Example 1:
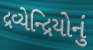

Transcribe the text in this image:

દ્રવ્યેન્દ્રિયોનું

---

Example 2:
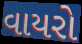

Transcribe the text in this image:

વાયરો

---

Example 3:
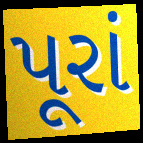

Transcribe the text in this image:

પૂરાં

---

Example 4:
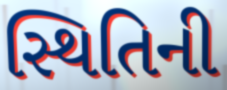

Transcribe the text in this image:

સ્થિતિની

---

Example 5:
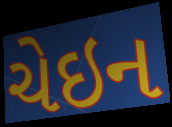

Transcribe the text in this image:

ચેઇન